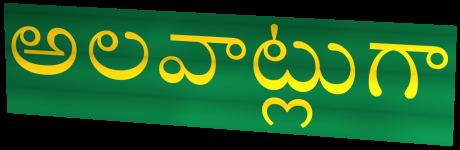
అలవాట్లుగా